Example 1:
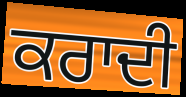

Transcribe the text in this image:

ਕਰਾਦੀ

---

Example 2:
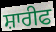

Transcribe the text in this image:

ਸ਼ਾਰੀਫ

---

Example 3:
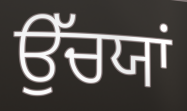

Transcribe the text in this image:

ਉੱਚਯਾਂ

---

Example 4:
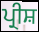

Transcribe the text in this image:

ਪ੍ਰੀਸ਼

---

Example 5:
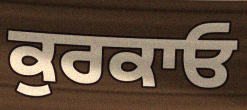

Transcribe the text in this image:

ਕੁਰਕਾਓ